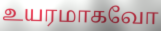
உயரமாகவோ